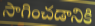
సాగించడానికి